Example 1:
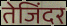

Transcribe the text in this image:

तेजिंदर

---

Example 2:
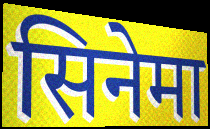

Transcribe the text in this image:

सिनेमा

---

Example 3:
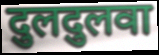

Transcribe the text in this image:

दुलदुलवा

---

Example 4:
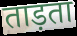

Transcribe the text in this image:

ताड़ता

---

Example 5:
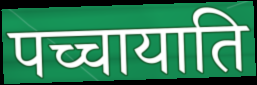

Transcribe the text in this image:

पच्चायाति